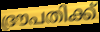
ദ്രൗപതിക്ക്